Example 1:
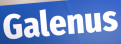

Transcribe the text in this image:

Galenus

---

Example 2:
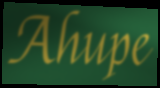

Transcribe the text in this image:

Ahupe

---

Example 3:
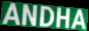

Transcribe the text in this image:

ANDHA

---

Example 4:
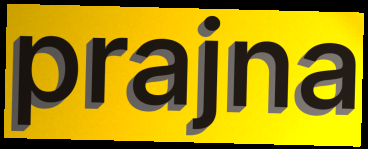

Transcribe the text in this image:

prajna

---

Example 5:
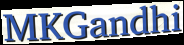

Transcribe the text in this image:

MKGandhi